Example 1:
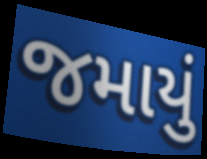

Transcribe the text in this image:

જમાયું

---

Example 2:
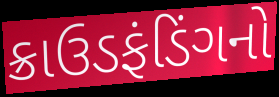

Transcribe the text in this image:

ક્રાઉડફંડિંગનો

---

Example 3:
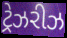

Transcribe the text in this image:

ટ્રેઝરીઝ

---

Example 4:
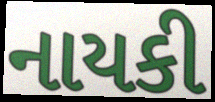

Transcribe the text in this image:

નાયકી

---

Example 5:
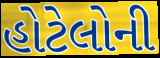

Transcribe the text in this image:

હોટેલોની